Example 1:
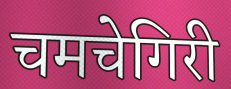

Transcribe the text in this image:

चमचेगिरी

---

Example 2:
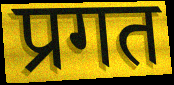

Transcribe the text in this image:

प्रगत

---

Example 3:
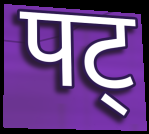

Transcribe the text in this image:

पट्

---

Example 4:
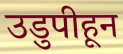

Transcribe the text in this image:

उडुपीहून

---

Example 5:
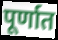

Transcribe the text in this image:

पूर्णात